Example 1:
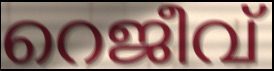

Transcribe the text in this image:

റെജീവ്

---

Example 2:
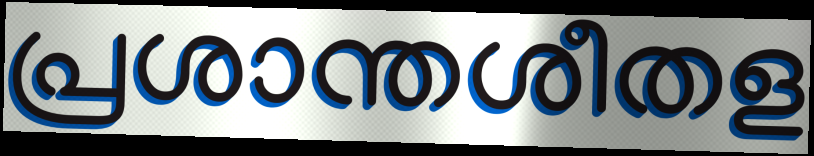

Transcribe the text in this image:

പ്രശാന്തശീതള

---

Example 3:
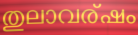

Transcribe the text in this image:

തുലാവര്ഷം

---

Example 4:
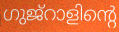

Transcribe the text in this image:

ഗുജ്റാളിന്റെ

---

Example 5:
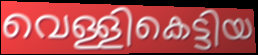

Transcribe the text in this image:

വെള്ളികെട്ടിയ